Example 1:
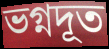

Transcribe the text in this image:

ভগ্নদূত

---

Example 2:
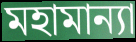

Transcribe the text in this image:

মহামান্যা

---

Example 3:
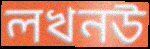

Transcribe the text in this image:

লখনউ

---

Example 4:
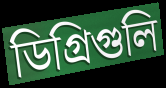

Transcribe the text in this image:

ডিগ্রিগুলি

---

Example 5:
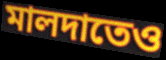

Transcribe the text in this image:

মালদাতেও